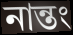
নান্তং